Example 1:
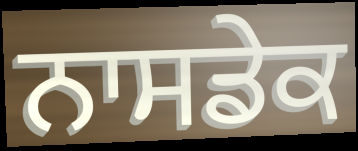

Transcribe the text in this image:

ਨਾਸਡੇਕ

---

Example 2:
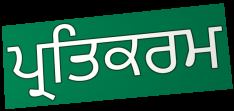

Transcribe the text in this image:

ਪ੍ਰਤਿਕਰਮ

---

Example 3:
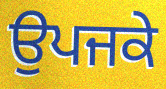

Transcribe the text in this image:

ਉਪਜਕੇ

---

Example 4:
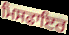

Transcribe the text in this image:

ਮਿਸਫਾਇਰ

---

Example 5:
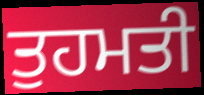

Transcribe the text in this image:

ਤੁਹਮਤੀ